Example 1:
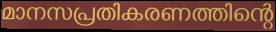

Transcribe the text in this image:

മാനസപ്രതികരണത്തിന്റെ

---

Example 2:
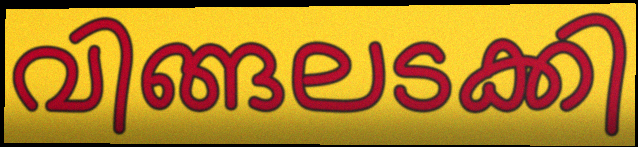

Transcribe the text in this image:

വിങ്ങലടക്കി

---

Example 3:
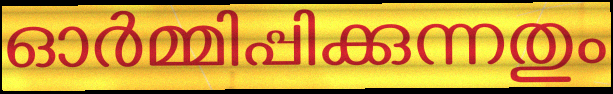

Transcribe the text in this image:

ഓർമ്മിപ്പിക്കുന്നതും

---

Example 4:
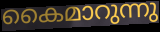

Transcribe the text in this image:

കൈമാറുന്നു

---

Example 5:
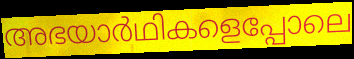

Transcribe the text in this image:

അഭയാർഥികളെപ്പോലെ